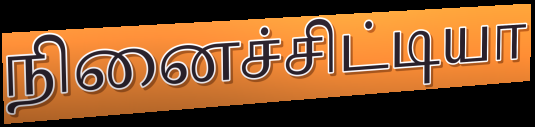
நினைச்சிட்டியா